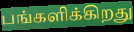
பங்களிக்கிறது